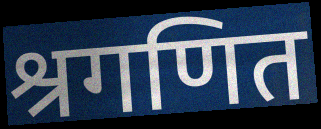
श्रगणित